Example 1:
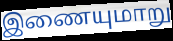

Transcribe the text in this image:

இணையுமாறு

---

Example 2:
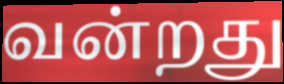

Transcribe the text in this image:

வன்றது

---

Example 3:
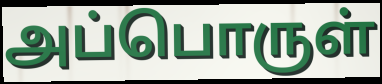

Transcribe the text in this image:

அப்பொருள்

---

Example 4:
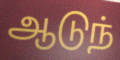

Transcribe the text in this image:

ஆடுந்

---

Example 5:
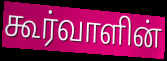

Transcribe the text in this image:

கூர்வாளின்